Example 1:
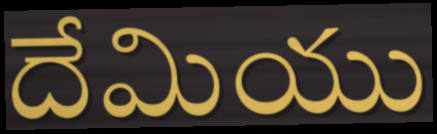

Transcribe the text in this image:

దేమియు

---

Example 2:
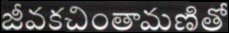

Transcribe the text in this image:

జీవకచింతామణితో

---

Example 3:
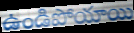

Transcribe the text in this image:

ఉండిపోయాయి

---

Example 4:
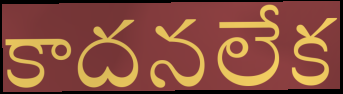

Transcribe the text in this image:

కాదనలేక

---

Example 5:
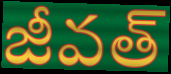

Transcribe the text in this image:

జీవత్